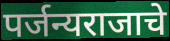
पर्जन्यराजाचे